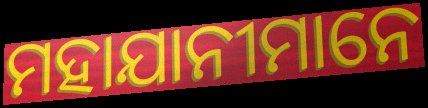
ମହାଯାନୀମାନେ